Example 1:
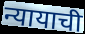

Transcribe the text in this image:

न्यायाची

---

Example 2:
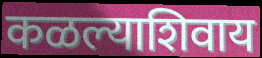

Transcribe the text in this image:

कळल्याशिवाय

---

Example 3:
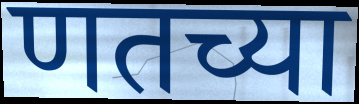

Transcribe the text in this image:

णतच्या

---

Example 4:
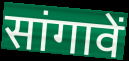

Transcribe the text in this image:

सांगावें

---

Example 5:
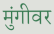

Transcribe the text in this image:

मुंगीवर